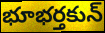
భూభర్తకున్